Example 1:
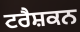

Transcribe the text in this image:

ਟਰੈਸ਼ਕਨ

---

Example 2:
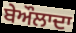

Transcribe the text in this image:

ਬੇਔਲਾਦਾ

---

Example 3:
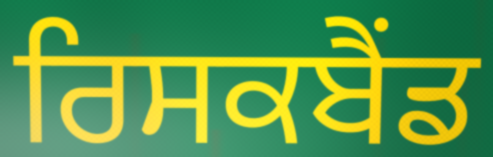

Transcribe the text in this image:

ਰਿਸਕਬੈਂਡ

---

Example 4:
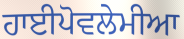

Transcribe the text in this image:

ਹਾਈਪੋਵਲੇਮੀਆ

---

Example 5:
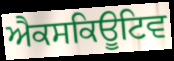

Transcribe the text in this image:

ਐਕਸਕਿਊਟਿਵ